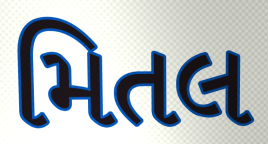
મિતલ